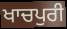
ਖਾਚਪੁਰੀ